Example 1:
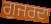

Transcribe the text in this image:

ਗੁਜਰਦਾ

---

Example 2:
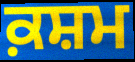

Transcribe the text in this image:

ਕ਼ਸ਼ਮ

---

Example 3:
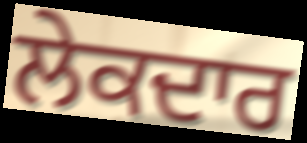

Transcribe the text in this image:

ਲੇਕਦਾਰ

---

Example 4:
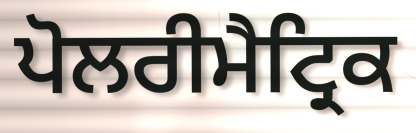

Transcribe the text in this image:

ਪੋਲਰੀਮੈਟ੍ਰਿਕ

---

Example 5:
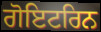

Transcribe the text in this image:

ਗੋਇਟਰਿਨ